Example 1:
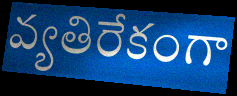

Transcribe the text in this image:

వ్యతిరేకంగా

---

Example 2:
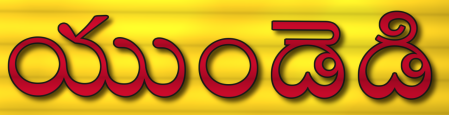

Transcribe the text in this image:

యుండెడి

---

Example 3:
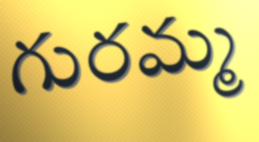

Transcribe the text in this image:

గురమ్మ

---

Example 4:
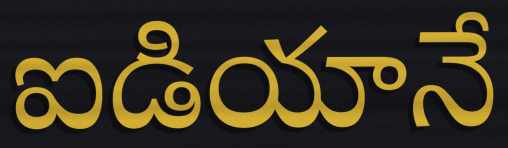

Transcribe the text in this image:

ఐడియానే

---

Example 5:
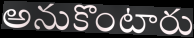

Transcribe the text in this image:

అనుకొంటారు